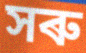
সৰু